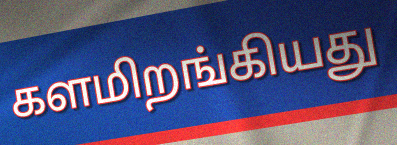
களமிறங்கியது